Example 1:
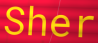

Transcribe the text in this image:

Sher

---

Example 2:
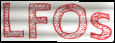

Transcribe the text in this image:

LFOs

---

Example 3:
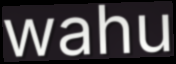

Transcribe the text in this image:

wahu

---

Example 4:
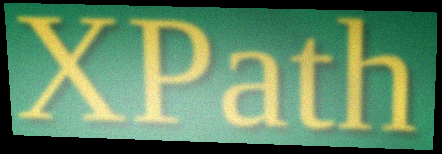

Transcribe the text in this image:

XPath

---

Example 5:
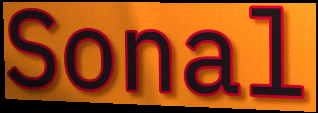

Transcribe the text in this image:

Sonal